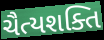
ચૈત્યશક્તિ